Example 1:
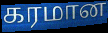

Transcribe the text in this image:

கரமான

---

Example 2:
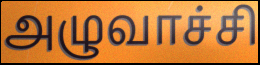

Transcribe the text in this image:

அழுவாச்சி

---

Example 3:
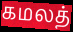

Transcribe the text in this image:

கமலத்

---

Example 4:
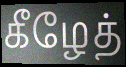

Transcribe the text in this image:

கீழேத்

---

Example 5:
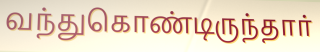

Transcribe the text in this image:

வந்துகொண்டிருந்தார்